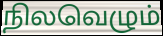
நிலவெழும்